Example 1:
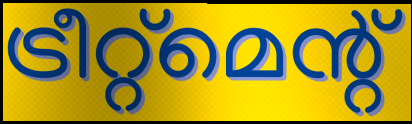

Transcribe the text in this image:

ട്രീറ്റ്മെന്റ്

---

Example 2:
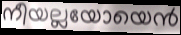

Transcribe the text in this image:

നീയല്ലയോയെൻ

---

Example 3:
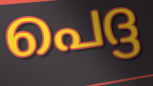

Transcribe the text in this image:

പെദ്ദ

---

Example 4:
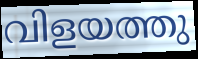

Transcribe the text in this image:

വിളയത്തു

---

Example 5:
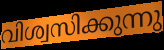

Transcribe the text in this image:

വിശ്വസിക്കുന്നു